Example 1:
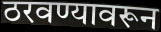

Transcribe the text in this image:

ठरवण्यावरून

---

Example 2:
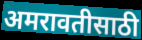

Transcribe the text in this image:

अमरावतीसाठी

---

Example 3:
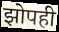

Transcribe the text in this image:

झोपही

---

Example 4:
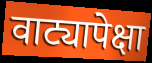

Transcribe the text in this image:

वाट्यापेक्षा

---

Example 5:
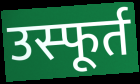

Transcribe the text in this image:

उस्फूर्त